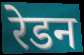
रेडन